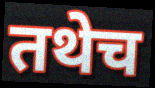
तथेच